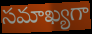
సమాఖ్యగా